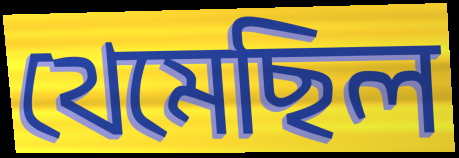
থেমেছিল